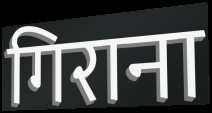
गिराना